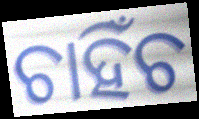
ଚାହିଁଚ